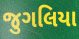
જુગલિયા